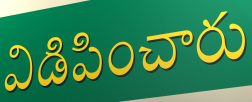
విడిపించారు